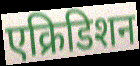
एक्रिडिशन